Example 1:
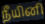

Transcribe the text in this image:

நீயினி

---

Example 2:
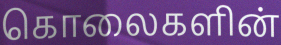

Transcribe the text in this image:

கொலைகளின்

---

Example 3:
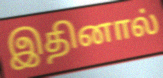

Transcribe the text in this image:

இதினால்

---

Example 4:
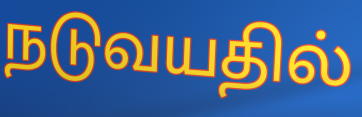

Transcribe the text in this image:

நடுவயதில்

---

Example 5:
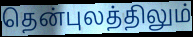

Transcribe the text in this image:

தென்புலத்திலும்